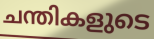
ചന്തികളുടെ